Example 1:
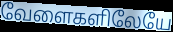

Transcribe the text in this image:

வேளைகளிலேயே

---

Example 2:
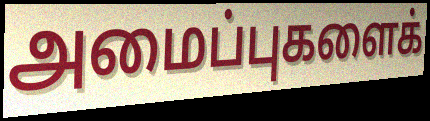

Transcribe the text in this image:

அமைப்புகளைக்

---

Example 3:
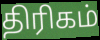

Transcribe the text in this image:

திரிகம்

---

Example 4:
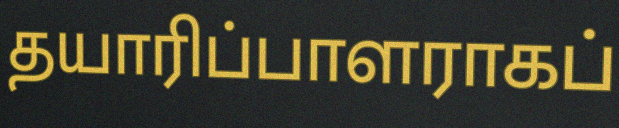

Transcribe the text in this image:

தயாரிப்பாளராகப்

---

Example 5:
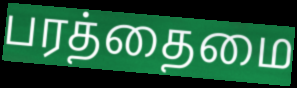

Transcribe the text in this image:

பரத்தைமை